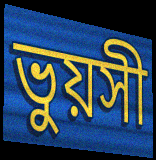
ভুয়সী